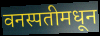
वनस्पतीमधून